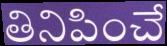
తినిపించే